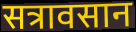
सत्रावसान